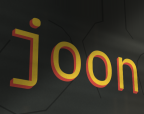
joon